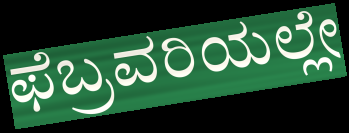
ಫೆಬ್ರವರಿಯಲ್ಲೇ